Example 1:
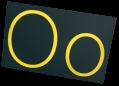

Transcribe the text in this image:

Oo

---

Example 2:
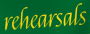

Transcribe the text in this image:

rehearsals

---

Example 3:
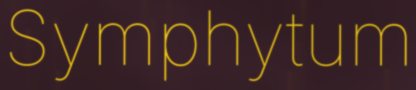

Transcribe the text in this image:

Symphytum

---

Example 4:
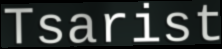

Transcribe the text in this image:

Tsarist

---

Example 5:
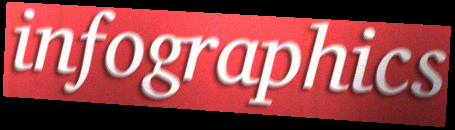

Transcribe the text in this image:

infographics